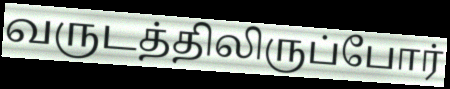
வருடத்திலிருப்போர்